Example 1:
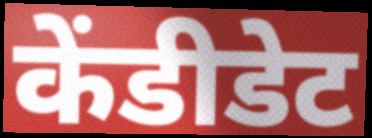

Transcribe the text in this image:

केंडीडेट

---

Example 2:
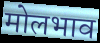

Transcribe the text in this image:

मोलभाव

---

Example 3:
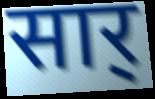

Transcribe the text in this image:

सार्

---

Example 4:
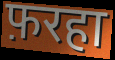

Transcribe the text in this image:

फ़रहा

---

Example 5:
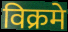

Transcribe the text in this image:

विक्रमे